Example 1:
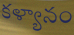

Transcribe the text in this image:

కళ్యానం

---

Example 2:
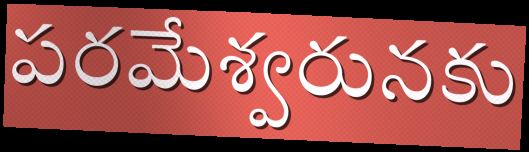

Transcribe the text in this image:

పరమేశ్వరునకు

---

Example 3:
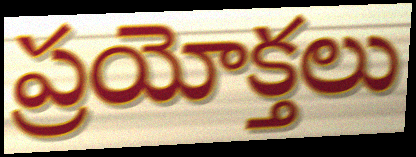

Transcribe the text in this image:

ప్రయోక్తలు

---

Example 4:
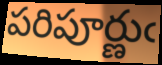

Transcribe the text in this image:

పరిపూర్ణుఁ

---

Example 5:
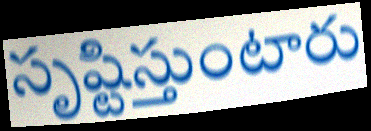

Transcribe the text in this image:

సృష్టిస్తుంటారు